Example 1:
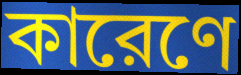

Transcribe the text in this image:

কারেণে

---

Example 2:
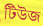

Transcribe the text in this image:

টিউজ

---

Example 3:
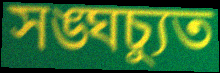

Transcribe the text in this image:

সঙ্ঘচ্যুত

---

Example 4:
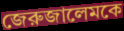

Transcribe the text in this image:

জেরুজালেমকে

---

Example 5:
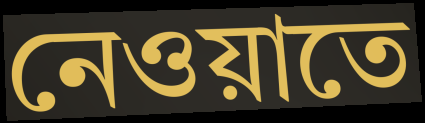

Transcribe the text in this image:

নেওয়াতে